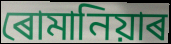
ৰোমানিয়াৰ